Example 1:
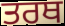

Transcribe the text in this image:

ਤਰਥ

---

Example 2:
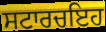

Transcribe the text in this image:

ਸਟਾਰਚਇਹ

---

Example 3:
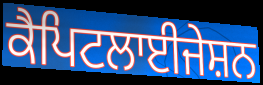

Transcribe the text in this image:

ਕੈਪਿਟਲਾਈਜੇਸ਼ਨ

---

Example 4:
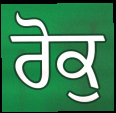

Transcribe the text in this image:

ਰੋਕੁ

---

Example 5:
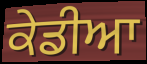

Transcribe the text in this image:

ਕੇਡੀਆ